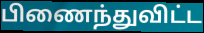
பிணைந்துவிட்ட